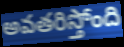
అవతరిస్తోంది